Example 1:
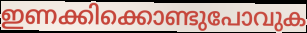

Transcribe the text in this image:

ഇണക്കിക്കൊണ്ടുപോവുക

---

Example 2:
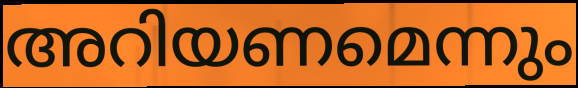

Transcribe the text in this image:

അറിയണമെന്നും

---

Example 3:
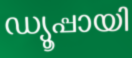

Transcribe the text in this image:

ഡ്യൂപ്പായി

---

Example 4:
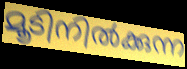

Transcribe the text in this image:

മൂടിനിൽക്കുന്ന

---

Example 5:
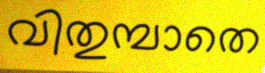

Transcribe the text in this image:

വിതുമ്പാതെ